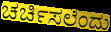
ಚರ್ಚಿಸಲೆಂದು